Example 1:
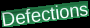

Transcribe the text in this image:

Defections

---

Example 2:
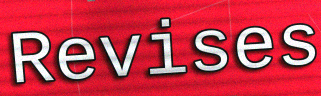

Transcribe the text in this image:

Revises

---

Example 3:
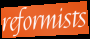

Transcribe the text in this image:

reformists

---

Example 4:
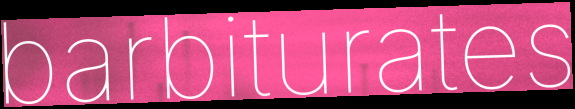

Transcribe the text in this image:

barbiturates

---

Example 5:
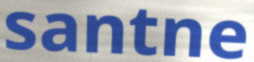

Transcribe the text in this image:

santne